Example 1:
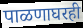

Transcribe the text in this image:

पाळणाघरही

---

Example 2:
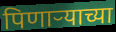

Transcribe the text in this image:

पिणाऱ्याच्या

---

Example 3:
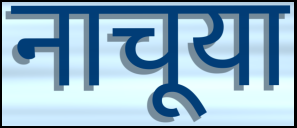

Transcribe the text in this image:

नाचूया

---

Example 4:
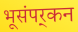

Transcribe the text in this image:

भूसंपर्कन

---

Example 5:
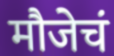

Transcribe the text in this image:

मौजेचं